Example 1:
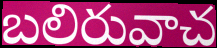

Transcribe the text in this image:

బలిరువాచ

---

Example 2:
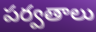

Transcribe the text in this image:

పర్వతాలు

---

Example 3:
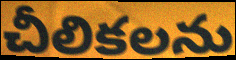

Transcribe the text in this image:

చీలికలను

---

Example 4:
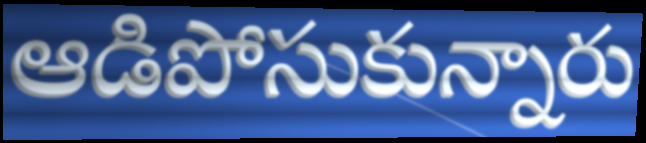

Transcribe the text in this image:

ఆడిపోసుకున్నారు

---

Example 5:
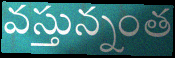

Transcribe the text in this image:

వస్తున్నంత